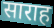
साराह